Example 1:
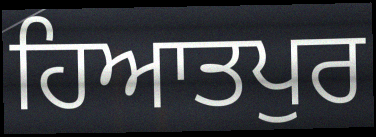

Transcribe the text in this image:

ਹਿਆਤਪੁਰ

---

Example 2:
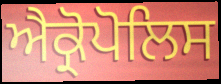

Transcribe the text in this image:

ਐਕ੍ਰੋਪੋਲਿਸ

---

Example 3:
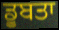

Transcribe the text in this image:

ਡੂਬਤਾ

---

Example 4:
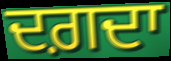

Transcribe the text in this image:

ਦਗ਼ਦਾ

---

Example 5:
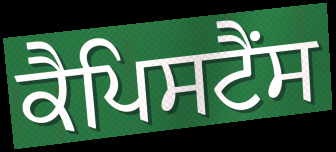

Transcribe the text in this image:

ਕੈਪਿਸਟੈਂਸ